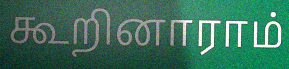
கூறினாராம்